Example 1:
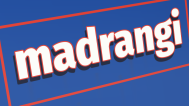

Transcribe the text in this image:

madrangi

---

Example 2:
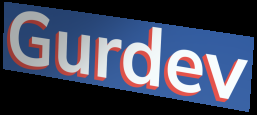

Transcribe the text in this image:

Gurdev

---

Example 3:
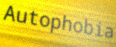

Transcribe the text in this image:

Autophobia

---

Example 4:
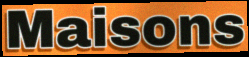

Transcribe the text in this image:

Maisons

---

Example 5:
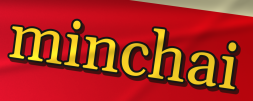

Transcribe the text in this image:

minchai